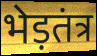
भेड़तंत्र